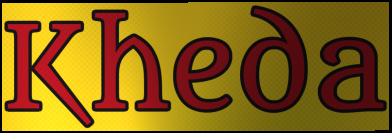
Kheda